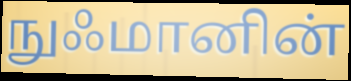
நுஃமானின்